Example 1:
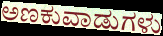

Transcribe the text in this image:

ಅಣಕುವಾಡುಗಳು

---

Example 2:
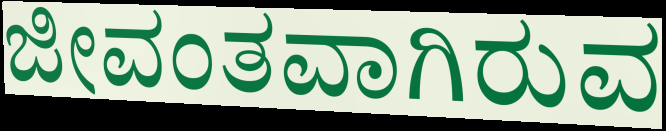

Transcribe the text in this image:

ಜೀವಂತವಾಗಿರುವ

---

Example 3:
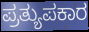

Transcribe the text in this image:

ಪ್ರತ್ಯುಪಕಾರ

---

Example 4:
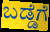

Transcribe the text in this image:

ಬಡ್ಡೆಗೆ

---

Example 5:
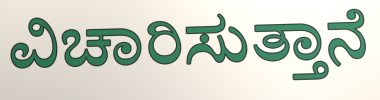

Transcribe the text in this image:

ವಿಚಾರಿಸುತ್ತಾನೆ